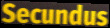
Secundus